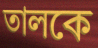
তালকে